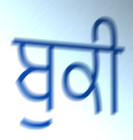
ਬੁਕੀ